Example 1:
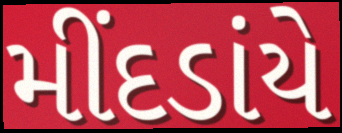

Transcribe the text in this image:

મીંદડાંયે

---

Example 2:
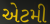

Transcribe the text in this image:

એટમી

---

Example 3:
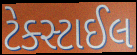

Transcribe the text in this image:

ટેક્સ્ટાઈલ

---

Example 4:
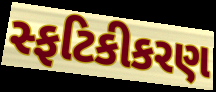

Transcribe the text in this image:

સ્ફટિકીકરણ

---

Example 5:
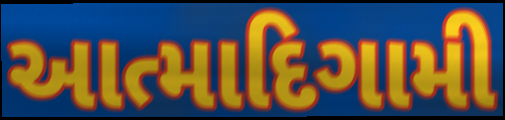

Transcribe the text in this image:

આત્માદિગામી